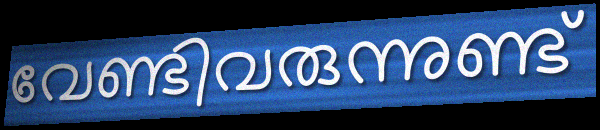
വേണ്ടിവരുന്നുണ്ട്